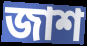
জাশ